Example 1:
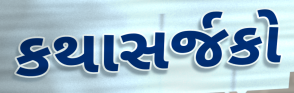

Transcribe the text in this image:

કથાસર્જકો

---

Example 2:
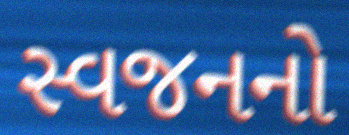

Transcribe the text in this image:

સ્વજનનો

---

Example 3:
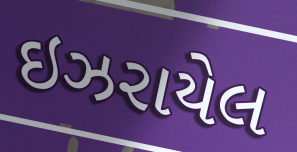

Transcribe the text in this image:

ઇઝરાયેલ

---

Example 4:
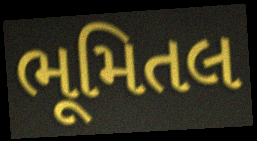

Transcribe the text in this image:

ભૂમિતલ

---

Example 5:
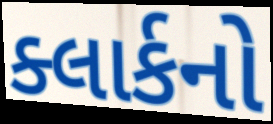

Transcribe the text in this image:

ક્લાર્કનો